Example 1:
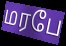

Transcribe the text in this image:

மரபே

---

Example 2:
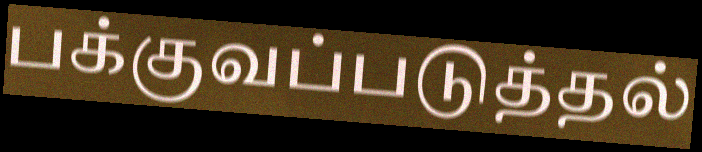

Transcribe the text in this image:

பக்குவப்படுத்தல்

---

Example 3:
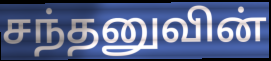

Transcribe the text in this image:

சந்தனுவின்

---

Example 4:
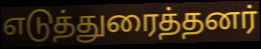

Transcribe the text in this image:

எடுத்துரைத்தனர்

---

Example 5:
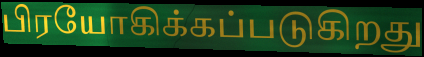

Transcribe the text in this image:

பிரயோகிக்கப்படுகிறது